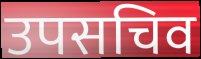
उपसचिव